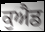
ਕੁਐਡ